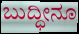
ಬುದ್ಧೀನೂ